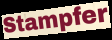
Stampfer